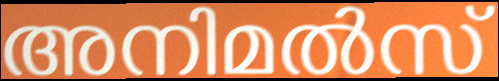
അനിമൽസ്